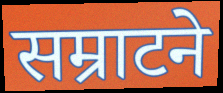
सम्राटने